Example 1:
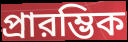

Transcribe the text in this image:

প্রারম্ভিক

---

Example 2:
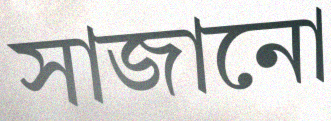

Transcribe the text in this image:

সাজানো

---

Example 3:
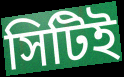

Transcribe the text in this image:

সিটিই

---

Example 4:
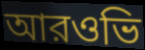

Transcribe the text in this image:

আরওভি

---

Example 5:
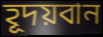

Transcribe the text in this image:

হূদয়বান